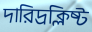
দারিদ্রক্লিষ্ট